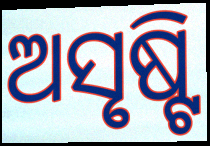
ଅସୃଷ୍ଟି